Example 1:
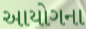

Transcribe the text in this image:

આયોગના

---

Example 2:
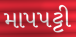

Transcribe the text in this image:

માપપટ્ટી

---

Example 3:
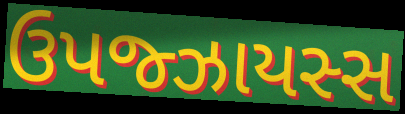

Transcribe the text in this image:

ઉપજ્ઝાયસ્સ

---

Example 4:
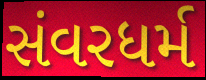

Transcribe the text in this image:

સંવરધર્મ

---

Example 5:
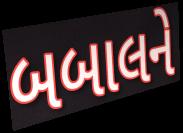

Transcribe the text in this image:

બબાલને